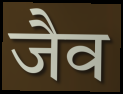
जैव